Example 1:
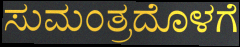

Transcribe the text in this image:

ಸುಮಂತ್ರದೊಳಗೆ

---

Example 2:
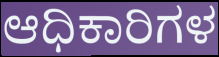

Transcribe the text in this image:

ಆಧಿಕಾರಿಗಳ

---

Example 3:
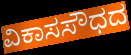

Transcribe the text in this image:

ವಿಕಾಸಸೌಧದ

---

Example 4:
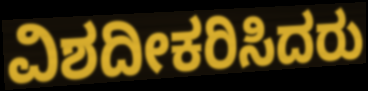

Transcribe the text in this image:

ವಿಶದೀಕರಿಸಿದರು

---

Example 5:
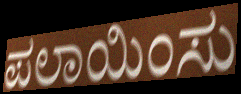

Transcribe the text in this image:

ಪಲಾಯಿಂಸು